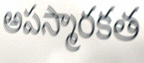
అపస్మారకత